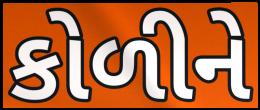
કોળીને